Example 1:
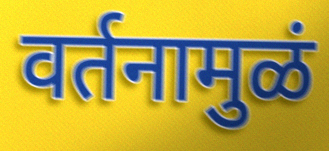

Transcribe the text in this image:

वर्तनामुळं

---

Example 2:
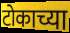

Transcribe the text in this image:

टोकाच्या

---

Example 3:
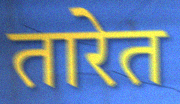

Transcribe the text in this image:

तारेत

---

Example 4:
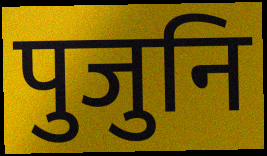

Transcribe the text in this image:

पुजुनि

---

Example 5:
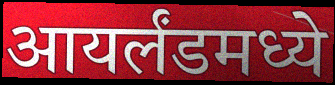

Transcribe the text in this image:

आयर्लंडमध्ये